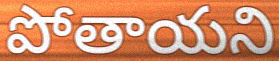
పోతాయని